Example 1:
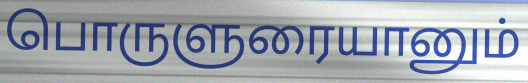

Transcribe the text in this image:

பொருளுரையானும்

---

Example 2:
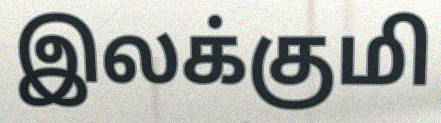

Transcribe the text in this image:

இலக்குமி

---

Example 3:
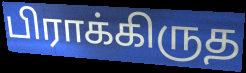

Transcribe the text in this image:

பிராக்கிருத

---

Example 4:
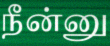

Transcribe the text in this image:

நீன்னு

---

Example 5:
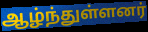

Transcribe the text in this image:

ஆழ்ந்துள்ளனர்